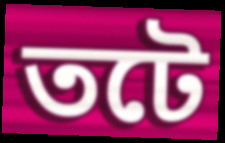
তটে